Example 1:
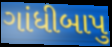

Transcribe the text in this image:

ગાંધીબાપુ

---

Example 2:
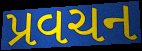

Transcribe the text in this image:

પ્રવચન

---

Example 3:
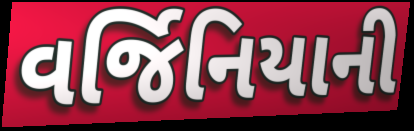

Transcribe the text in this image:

વર્જિનિયાની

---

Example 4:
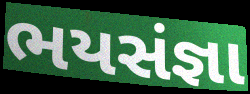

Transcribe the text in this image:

ભયસંજ્ઞા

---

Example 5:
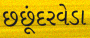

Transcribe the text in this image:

છછૂંદરવેડા